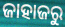
ଜାହାଜରୁ